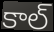
కాల్